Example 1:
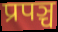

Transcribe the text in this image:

प्रपञ्च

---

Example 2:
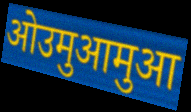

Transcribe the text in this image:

ओउमुआमुआ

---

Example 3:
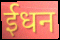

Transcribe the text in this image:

ईधन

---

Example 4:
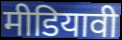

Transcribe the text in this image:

मीडियावी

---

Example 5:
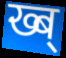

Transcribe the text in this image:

ख्ब्